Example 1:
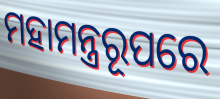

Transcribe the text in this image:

ମହାମନ୍ତ୍ରରୂପରେ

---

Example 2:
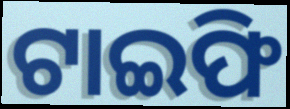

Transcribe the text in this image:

ଟାଇଫି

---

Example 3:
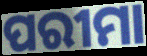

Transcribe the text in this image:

ପରୀମା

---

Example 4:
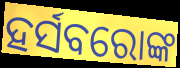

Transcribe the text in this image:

ହର୍ସବରୋଙ୍କ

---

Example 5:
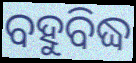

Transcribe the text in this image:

ବହୁବିଦ୍ଧ